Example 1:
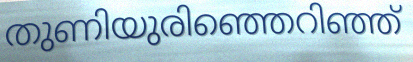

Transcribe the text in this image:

തുണിയുരിഞ്ഞെറിഞ്ഞ്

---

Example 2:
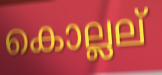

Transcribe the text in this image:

കൊല്ലല്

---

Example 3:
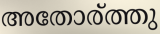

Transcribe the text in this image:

അതോര്ത്തു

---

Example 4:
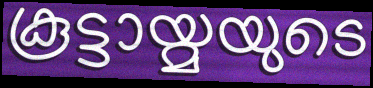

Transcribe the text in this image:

കൂട്ടായ്മയുടെ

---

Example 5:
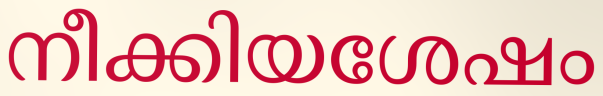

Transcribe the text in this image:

നീക്കിയശേഷം